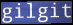
gilgit